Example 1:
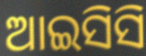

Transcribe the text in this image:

ଆଇସିସି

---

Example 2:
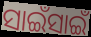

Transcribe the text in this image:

ସାଇଁସାଇଁ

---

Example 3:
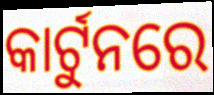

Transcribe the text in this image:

କାର୍ଟୁନରେ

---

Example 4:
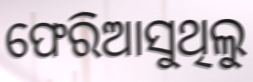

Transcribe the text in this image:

ଫେରିଆସୁଥିଲୁ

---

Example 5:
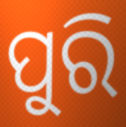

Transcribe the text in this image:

ପୁରି